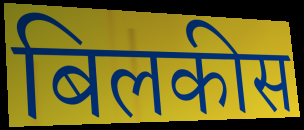
बिलकीस